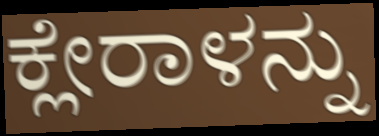
ಕ್ಲೇರಾಳನ್ನು